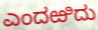
ಎಂದಱಿದು